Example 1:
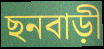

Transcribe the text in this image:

ছনবাড়ী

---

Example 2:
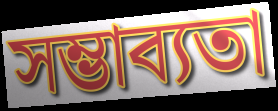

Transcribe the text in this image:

সম্ভাব্যতা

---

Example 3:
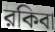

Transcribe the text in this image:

রকিবা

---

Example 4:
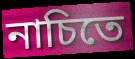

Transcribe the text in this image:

নাচিতে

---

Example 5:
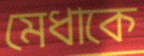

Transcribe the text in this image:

মেধাকে